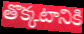
తొక్కటానికి